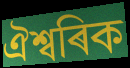
ঐশ্বৰিক